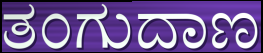
ತಂಗುದಾಣ